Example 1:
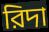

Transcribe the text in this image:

রিদা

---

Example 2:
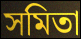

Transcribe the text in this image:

সমিতা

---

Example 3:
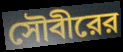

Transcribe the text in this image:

সৌবীরের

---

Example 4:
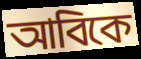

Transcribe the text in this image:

আবিকে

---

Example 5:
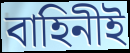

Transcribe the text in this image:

বাহিনীই